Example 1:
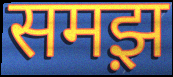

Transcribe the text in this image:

समझ़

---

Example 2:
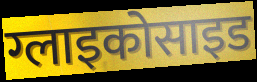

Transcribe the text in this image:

ग्लाइकोसाइड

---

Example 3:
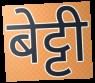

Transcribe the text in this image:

बेट्टी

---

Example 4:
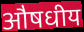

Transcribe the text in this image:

औषधीय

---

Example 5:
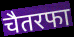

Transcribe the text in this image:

चैतरफा